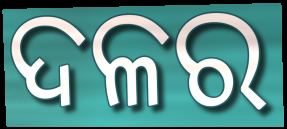
ଦଳର